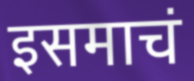
इसमाचं